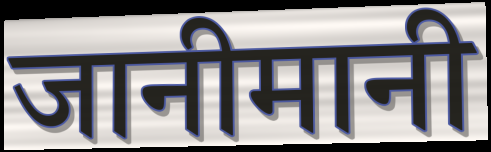
जानीमानी